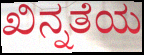
ಖಿನ್ನತೆಯ